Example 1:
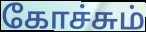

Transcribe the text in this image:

கோச்சும்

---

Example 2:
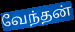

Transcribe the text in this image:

வேந்தன்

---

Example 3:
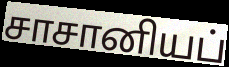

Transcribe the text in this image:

சாசானியப்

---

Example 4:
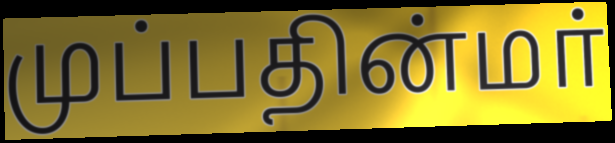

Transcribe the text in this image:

முப்பதின்மர்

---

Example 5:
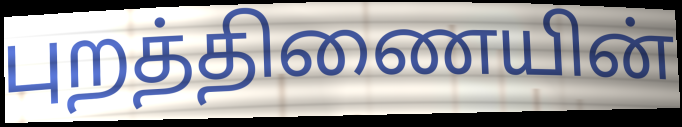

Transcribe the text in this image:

புறத்திணையின்